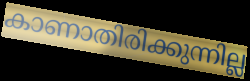
കാണാതിരിക്കുന്നില്ല